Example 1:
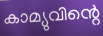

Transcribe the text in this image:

കാമ്യുവിന്റെ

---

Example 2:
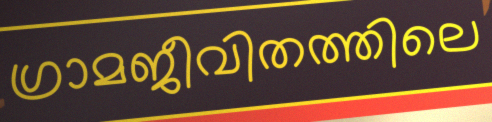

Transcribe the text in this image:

ഗ്രാമജീവിതത്തിലെ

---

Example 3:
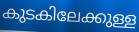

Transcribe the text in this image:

കുടകിലേക്കുള്ള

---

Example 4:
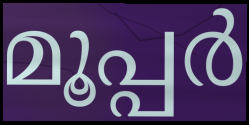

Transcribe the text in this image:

മൂപ്പർ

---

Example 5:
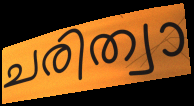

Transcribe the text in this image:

ചരിത്വാ